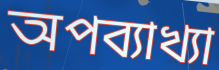
অপব্যাখ্যা